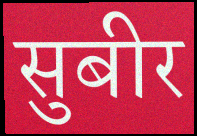
सुबीर